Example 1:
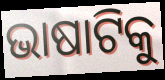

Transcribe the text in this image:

ଭାଷାଟିକୁ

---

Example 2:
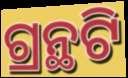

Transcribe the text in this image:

ଗ୍ରନ୍ଥଟି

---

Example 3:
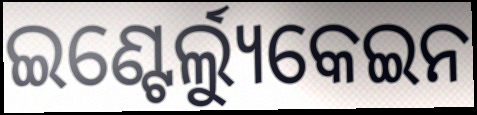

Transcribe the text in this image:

ଇଣ୍ଟେର୍ଲ୍ୟୁକେଇନ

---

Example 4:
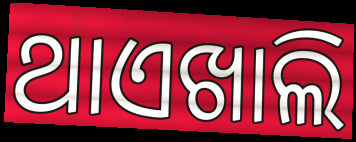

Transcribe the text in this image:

ଥାଏଖାଲି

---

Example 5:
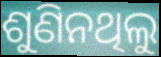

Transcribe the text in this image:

ଶୁଣିନଥିଲୁ